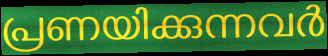
പ്രണയിക്കുന്നവർ